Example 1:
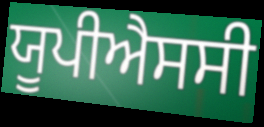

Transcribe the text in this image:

ਯੂਪੀਐਸਸੀ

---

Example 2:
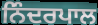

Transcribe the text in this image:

ਨਿੰਦਰਪਾਲ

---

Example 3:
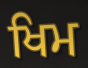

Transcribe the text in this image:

ਖਿਮ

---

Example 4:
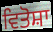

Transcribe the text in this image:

ਵਿਤੋਸ਼ਾ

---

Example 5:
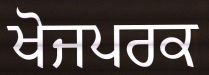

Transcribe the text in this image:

ਖੋਜਪਰਕ